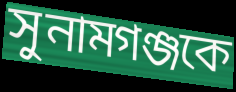
সুনামগঞ্জকে